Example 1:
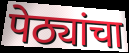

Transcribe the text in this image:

पेठ्यांचा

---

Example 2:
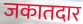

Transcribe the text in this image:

जकातदार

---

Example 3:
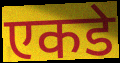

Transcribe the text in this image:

एकडे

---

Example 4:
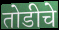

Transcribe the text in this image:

तोडीचे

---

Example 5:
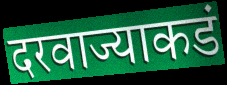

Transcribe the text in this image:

दरवाज्याकडं